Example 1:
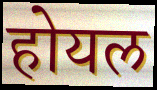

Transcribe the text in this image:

होयल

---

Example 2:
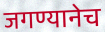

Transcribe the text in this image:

जगण्यानेच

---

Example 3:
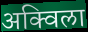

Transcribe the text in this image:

अक्विला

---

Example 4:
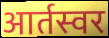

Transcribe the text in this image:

आर्तस्वर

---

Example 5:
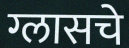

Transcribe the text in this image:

ग्लासचे